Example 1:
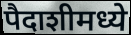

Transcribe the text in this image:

पैदाशीमध्ये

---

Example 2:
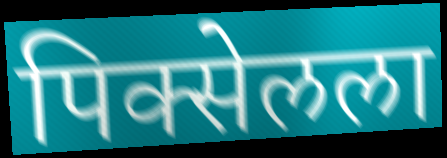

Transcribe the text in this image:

पिक्सेलला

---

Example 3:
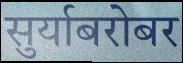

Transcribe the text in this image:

सुर्याबरोबर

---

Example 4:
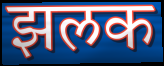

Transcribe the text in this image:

झलक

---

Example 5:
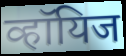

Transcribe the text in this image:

व्हॉयिज